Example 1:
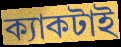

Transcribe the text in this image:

ক্যাকটাই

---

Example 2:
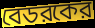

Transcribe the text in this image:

বেডরকের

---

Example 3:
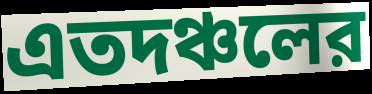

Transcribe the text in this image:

এতদঞ্চলের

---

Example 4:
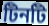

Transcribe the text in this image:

টিনটি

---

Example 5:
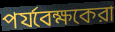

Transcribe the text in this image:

পর্যবেক্ষকেরা